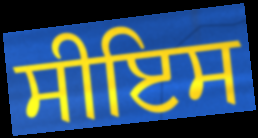
ਸੀਇਸ